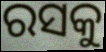
ରସକୁ